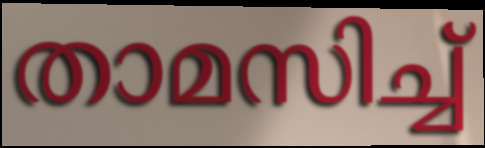
താമസിച്ച്